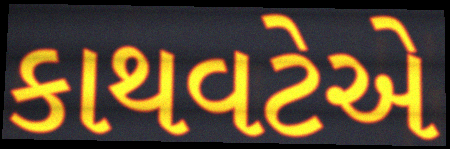
કાથવટેએ